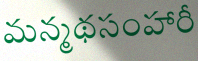
మన్మథసంహారీ